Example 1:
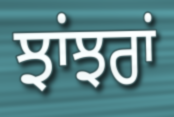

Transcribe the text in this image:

ਝਾਂਝਰਾਂ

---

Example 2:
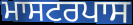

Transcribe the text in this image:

ਮਾਸਟਰਪਾਸ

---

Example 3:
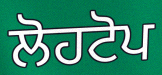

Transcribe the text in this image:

ਲੋਹਟੋਪ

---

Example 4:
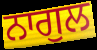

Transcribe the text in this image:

ਨਾਗੁਲ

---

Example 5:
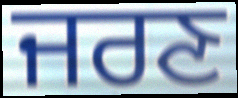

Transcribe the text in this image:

ਜਰਣ